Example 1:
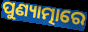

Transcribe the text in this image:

ପୁଣ୍ୟାତ୍ମାରେ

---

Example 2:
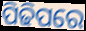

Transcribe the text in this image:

ପିଢିପରେ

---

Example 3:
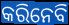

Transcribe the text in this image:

କରିନେବି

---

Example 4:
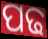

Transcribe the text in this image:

ପଢ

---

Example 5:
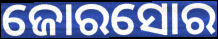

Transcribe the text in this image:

ଜୋରସୋର